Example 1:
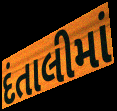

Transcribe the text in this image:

દંતાલીમાં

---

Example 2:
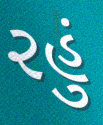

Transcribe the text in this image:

રહું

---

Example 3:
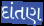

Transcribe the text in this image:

દાંતણ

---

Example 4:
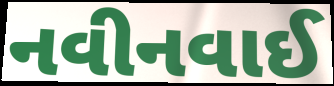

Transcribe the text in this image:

નવીનવાઈ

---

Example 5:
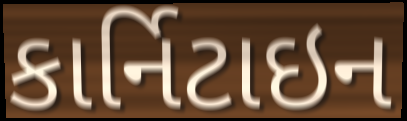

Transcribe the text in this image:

કાર્નિટાઇન